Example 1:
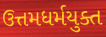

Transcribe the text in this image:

ઉત્તમધર્મયુક્ત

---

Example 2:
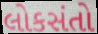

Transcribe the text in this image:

લોકસંતો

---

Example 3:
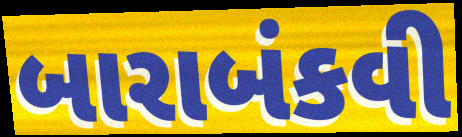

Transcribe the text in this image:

બારાબંકવી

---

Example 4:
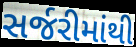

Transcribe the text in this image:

સર્જરીમાંથી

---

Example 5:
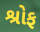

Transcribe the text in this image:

શ્રોફ